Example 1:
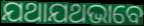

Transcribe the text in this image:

ଯଥାଯଥଭାବେ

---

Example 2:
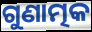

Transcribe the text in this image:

ଗୁଣାତ୍ମକ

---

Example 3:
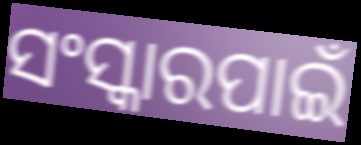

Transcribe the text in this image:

ସଂସ୍କାରପାଇଁ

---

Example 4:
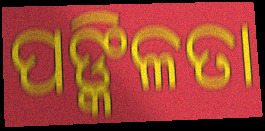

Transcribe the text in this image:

ପଙ୍କିଳତା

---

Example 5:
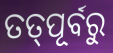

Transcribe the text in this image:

ତତ୍‌ପୂର୍ବରୁ